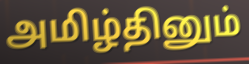
அமிழ்தினும்